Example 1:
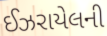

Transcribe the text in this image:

ઈઝરાયેલની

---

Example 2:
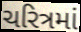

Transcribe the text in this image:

ચરિત્રમાં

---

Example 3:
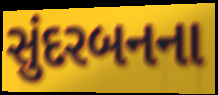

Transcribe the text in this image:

સુંદરબનના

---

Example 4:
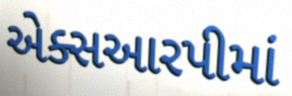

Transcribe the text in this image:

એક્સઆરપીમાં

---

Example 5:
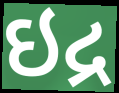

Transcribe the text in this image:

ઇદ્ર